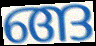
ങ്ങ